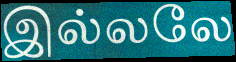
இல்லலே